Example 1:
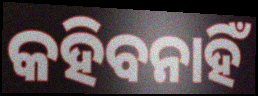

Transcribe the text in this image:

କହିବନାହିଁ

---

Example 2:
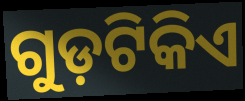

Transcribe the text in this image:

ଗୁଡ଼ଟିକିଏ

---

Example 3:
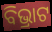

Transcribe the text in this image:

ବିଭ୍ରାଟ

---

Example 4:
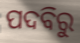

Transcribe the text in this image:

ପଦବିରୁ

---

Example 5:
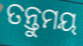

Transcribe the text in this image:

ତନ୍ତୁମୟ